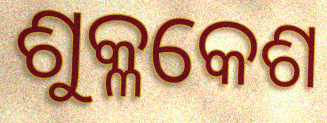
ଶୁକ୍ଳକେଶ